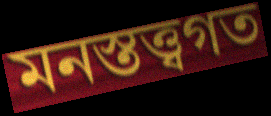
মনস্তত্ত্বগত